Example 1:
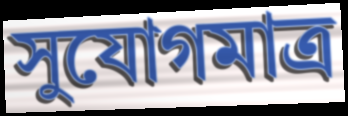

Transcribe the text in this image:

সুযোগমাত্র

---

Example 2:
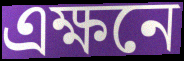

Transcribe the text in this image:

এক্ষনে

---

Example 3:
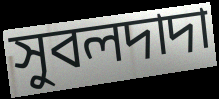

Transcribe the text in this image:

সুবলদাদা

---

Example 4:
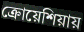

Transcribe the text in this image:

ক্রোয়েশিয়ায়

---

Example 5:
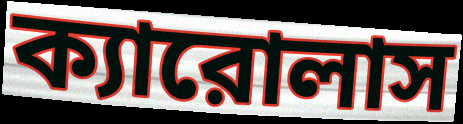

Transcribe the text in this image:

ক্যারোলাস